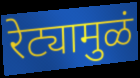
रेट्यामुळं